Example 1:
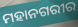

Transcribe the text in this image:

ମହାନଗରୀର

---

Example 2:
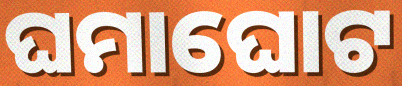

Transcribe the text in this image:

ଘମାଘୋଟ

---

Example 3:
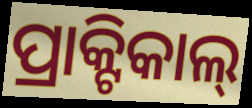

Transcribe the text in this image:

ପ୍ରାକ୍ଟିକାଲ୍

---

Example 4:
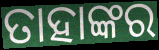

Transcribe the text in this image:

ତାହାଙ୍କର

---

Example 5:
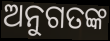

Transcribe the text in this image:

ଅନୁଗତଙ୍କ